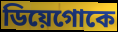
ডিয়েগোকে